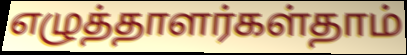
எழுத்தாளர்கள்தாம்